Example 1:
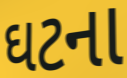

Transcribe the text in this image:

ઘટના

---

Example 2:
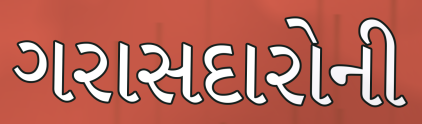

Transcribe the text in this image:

ગરાસદારોની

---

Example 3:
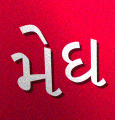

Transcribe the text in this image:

મેઘ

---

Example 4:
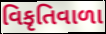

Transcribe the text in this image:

વિકૃતિવાળા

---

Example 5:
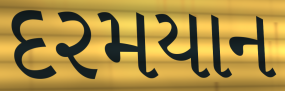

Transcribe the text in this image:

દરમયાન